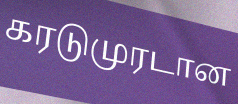
கரடுமுரடான